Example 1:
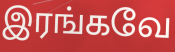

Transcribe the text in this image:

இரங்கவே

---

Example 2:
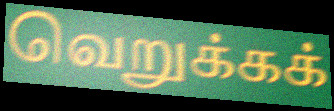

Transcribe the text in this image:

வெறுக்கக்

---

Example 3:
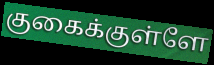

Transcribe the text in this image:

குகைக்குள்ளே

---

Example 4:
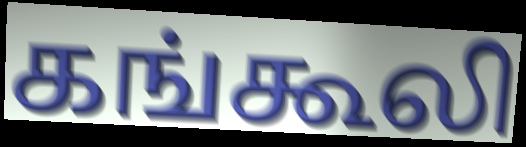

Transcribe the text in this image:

கங்கூலி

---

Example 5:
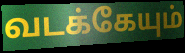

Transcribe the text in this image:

வடக்கேயும்